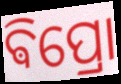
ଵିପ୍ରୋ